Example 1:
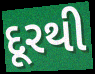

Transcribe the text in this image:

દૂરથી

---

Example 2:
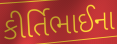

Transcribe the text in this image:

કીર્તિભાઈના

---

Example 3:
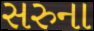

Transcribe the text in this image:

સરુના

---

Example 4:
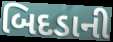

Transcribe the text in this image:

બિદડાની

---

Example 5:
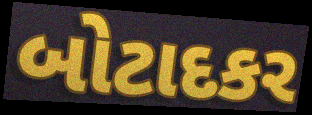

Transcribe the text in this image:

બોટાદકર